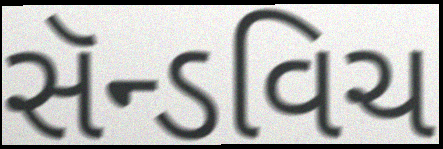
સૅન્ડવિચ